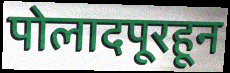
पोलादपूरहून